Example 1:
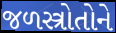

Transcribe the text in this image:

જળસ્ત્રોતોને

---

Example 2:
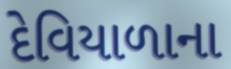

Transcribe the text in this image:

દેવિયાળાના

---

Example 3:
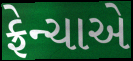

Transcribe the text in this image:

ફ્રેન્ચાએ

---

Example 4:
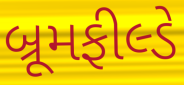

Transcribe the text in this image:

બ્રૂમફીલ્ડે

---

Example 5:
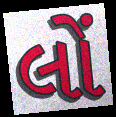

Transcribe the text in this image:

લોં